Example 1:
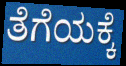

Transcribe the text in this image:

ತೆಗೆಯಕ್ಕೆ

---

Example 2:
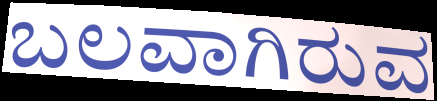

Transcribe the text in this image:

ಬಲವಾಗಿರುವ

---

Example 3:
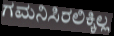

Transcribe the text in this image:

ಗಮನಿಸಿರಲಿಕ್ಕಿಲ್ಲ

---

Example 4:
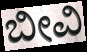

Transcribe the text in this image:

ಬೀವಿ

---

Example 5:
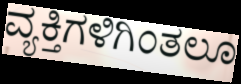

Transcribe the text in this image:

ವ್ಯಕ್ತಿಗಳಿಗಿಂತಲೂ